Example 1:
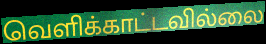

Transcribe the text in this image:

வெளிக்காட்டவில்லை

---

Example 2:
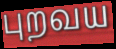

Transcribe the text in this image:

புறவய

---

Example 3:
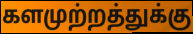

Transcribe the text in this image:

களமுற்றத்துக்கு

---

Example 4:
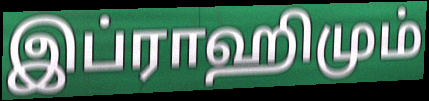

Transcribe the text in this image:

இப்ராஹிமும்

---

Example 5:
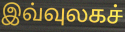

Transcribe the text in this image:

இவ்வுலகச்